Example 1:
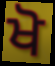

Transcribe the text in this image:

ਖੋ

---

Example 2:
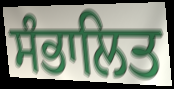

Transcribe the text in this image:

ਸੰਭਾਲਿਤ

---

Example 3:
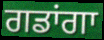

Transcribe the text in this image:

ਗਡਾਂਗਾ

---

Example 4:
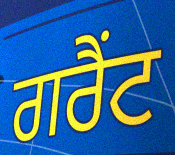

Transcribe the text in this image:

ਗਰੈਂਟ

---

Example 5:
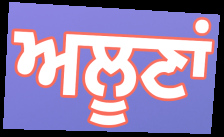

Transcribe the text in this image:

ਅਲੂਣਾਂ